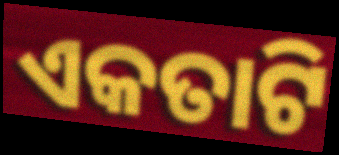
ଏକତାଟି